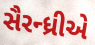
સૈરન્ધ્રીએ